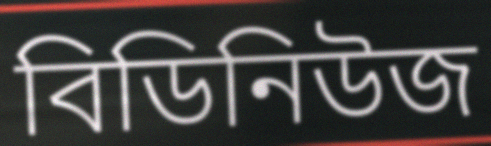
বিডিনিউজ